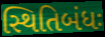
સ્થિતિબંધઃ